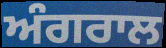
ਅੰਗਰਾਲ